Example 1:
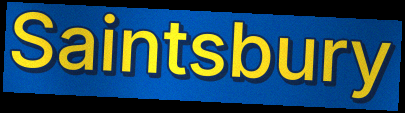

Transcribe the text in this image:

Saintsbury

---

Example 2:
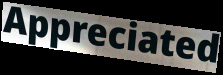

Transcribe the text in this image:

Appreciated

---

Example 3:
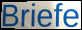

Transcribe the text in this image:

Briefe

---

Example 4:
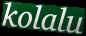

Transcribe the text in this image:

kolalu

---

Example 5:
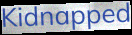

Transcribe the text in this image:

Kidnapped